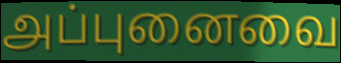
அப்புனைவை